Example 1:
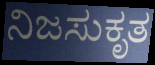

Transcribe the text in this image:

ನಿಜಸುಕೃತ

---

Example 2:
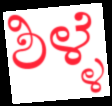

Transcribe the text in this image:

ಶಿಳ್ಳೆ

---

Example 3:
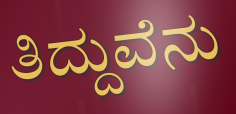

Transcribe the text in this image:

ತಿದ್ದುವೆನು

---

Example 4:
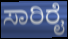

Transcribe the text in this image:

ಸಾರಿರೈ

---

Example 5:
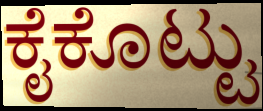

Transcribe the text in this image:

ಕೈಕೊಟ್ಟು